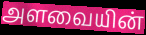
அளவையின்